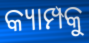
କ୍ୟାମ୍ପକୁ